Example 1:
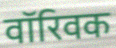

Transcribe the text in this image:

वॉरिवक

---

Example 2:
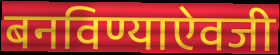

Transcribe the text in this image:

बनविण्याऐवजी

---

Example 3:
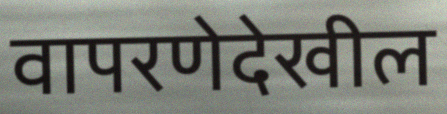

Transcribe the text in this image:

वापरणेदेखील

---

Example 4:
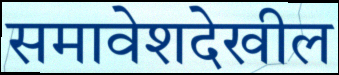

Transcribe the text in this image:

समावेशदेखील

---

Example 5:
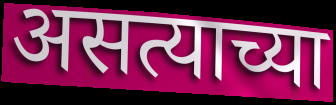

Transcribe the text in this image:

असत्याच्या